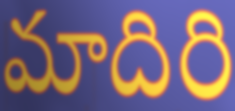
మాదిరి